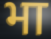
भा